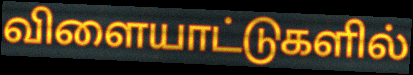
விளையாட்டுகளில்